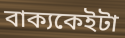
বাক্যকেইটা